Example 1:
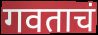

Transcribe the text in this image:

गवताचं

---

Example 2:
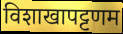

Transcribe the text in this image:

विशाखापट्टणम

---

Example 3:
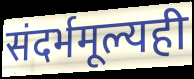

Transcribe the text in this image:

संदर्भमूल्यही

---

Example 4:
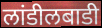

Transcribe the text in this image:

लांडीलबाडी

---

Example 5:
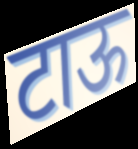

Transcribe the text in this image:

टाऊ